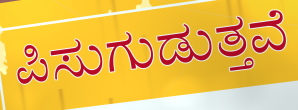
ಪಿಸುಗುಡುತ್ತವೆ